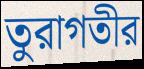
তুরাগতীর